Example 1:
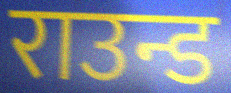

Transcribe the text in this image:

राउन्ड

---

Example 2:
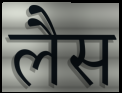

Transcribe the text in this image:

लैस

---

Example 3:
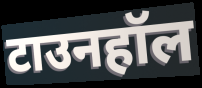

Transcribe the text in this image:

टाउनहॉल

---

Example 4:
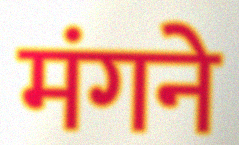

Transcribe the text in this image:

मंगने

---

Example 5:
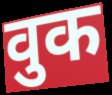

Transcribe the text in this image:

वुक